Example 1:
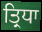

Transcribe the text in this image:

ਤ੍ਰਿਧਾ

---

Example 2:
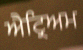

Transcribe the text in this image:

ਐਟ੍ਰਿਅਮ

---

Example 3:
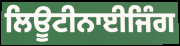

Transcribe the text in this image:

ਲਿਊਟੀਨਾਈਜਿੰਗ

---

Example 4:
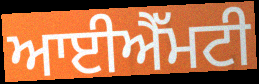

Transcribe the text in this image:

ਆਈਐੱਮਟੀ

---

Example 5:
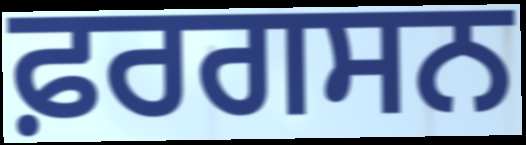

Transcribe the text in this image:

ਫ਼ਰਗਸਨ